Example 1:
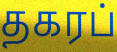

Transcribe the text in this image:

தகரப்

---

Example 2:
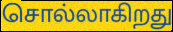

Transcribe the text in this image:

சொல்லாகிறது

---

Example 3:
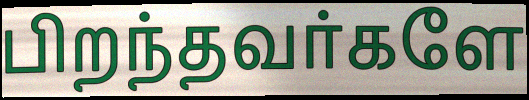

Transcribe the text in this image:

பிறந்தவர்களே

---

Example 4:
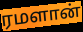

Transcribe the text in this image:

ரமளான்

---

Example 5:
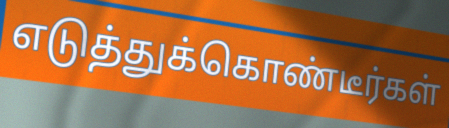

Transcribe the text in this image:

எடுத்துக்கொண்டீர்கள்